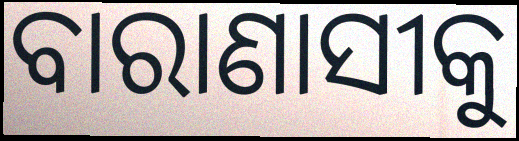
ବାରାଣାସୀକୁ